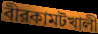
বীরকামটখালী